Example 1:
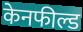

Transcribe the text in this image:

केनफील्ड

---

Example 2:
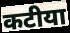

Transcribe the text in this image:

कटीया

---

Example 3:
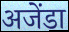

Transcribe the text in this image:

अजेंडा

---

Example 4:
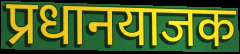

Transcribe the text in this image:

प्रधानयाजक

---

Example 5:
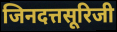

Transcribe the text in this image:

जिनदत्तसूरिजी